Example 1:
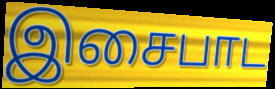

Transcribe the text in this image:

இசைபாட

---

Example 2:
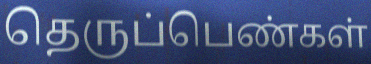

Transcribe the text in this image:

தெருப்பெண்கள்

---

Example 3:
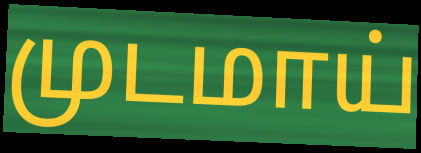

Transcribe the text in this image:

முடமாய்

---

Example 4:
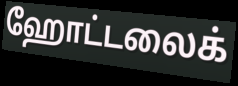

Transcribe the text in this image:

ஹோட்டலைக்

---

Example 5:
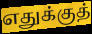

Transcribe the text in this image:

எதுக்குத்